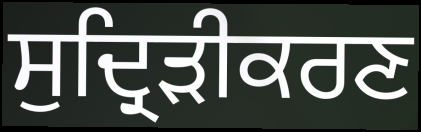
ਸੁਦ੍ਰਿੜੀਕਰਣ